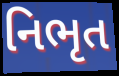
નિભૃત